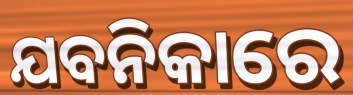
ଯବନିକାରେ